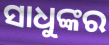
ସାଧୁଙ୍କର